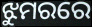
ଝୁମରରେ